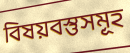
বিষয়বস্তুসমূহ